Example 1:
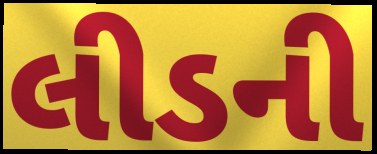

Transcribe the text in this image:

લીડની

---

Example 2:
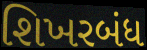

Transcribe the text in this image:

શિખરબંધ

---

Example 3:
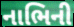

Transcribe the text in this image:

નાભિની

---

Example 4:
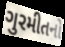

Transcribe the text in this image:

ગુરમીતનો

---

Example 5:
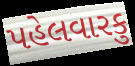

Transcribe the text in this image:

પહેલવારકુ